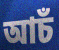
আচঁ